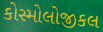
કોસ્મોલોજીકલ